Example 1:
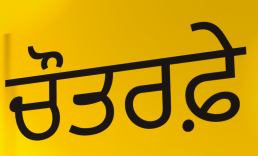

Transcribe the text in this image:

ਚੌਤਰਫ਼ੇ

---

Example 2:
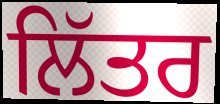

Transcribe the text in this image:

ਲਿੱਤਰ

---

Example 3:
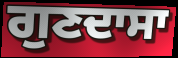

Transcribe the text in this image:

ਗੁਣਦਾਸਾ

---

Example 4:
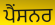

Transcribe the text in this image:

ਪੈਂਸਨਰ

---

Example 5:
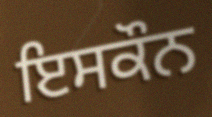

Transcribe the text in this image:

ਇਸਕੌਨ